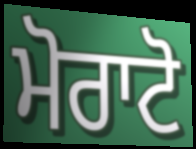
ਮੋਰਾਟੋ